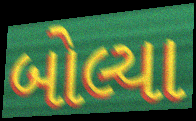
બોલ્યા